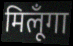
मिलूँगा